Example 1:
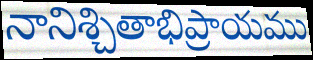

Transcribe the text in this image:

నానిశ్చితాభిప్రాయము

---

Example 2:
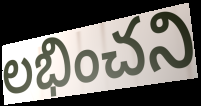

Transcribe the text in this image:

లభించని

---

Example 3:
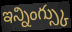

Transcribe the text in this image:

ఇన్నింగ్స్కు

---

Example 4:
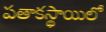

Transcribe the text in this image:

పతాకస్థాయిలో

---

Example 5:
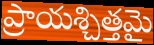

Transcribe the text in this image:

ప్రాయశ్చిత్తమై